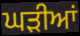
ਘੜੀਆਂ